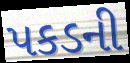
પકડની